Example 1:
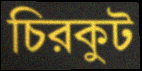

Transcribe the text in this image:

চিরকুট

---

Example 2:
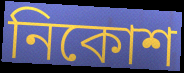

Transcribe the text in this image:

নিকোশ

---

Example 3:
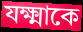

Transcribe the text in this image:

যক্ষ্মাকে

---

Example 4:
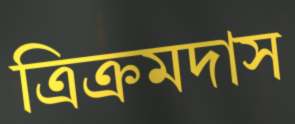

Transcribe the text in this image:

ত্রিক্রমদাস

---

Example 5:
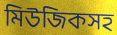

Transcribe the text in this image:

মিউজিকসহ